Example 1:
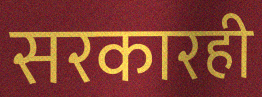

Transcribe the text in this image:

सरकारही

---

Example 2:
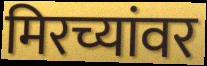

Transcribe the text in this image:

मिरच्यांवर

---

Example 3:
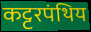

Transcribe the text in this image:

कट्टरपंथिय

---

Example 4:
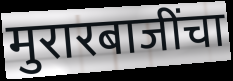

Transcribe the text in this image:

मुरारबाजींचा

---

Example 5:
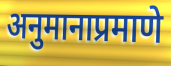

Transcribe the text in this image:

अनुमानाप्रमाणे